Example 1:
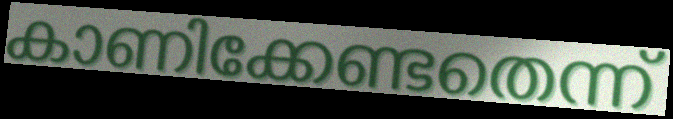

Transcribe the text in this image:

കാണിക്കേണ്ടതെന്ന്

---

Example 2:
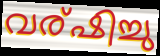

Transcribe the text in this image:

വര്ഷിച്ചു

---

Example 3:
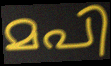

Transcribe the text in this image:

മപി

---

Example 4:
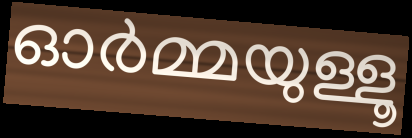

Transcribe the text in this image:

ഓർമ്മയുള്ളൂ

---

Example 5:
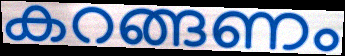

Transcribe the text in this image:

കറങ്ങണം